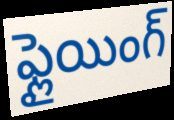
ఫ్లైయింగ్